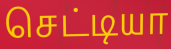
செட்டியா